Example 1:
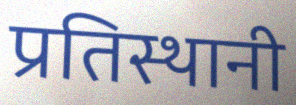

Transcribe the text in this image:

प्रतिस्थानी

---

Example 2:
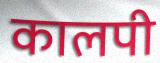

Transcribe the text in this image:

कालपी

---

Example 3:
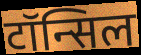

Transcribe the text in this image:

टॉन्सिल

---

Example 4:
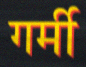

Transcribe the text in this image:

गर्मी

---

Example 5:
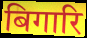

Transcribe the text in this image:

बिगारि